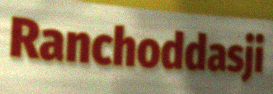
Ranchoddasji